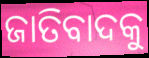
ଜାତିବାଦକୁ